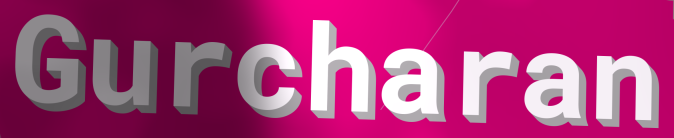
Gurcharan